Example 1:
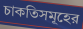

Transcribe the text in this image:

চাকতিসমূহের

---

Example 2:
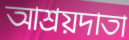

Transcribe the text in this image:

আশ্রয়দাতা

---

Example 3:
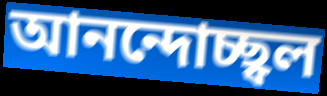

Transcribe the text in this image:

আনন্দোচ্ছ্বল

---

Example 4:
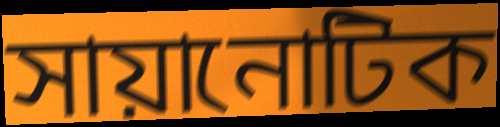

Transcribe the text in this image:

সায়ানোটিক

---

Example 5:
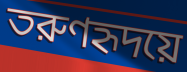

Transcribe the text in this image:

তরুণহৃদয়ে